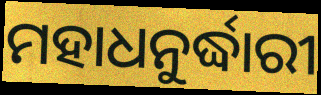
ମହାଧନୁର୍ଦ୍ଧାରୀ